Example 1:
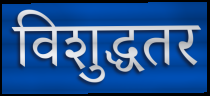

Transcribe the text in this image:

विशुद्धतर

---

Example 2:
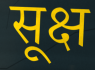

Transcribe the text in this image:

सूक्ष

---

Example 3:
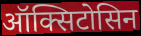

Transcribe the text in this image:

ऑक्सिटोसिन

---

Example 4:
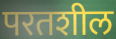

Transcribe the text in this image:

परतशील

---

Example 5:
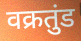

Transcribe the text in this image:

वक्रतुंड